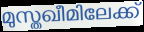
മുസ്തഖീമിലേക്ക്